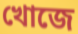
খোজে